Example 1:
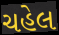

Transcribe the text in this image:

ચહેલ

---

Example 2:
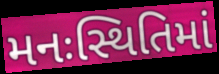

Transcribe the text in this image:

મનઃસ્થિતિમાં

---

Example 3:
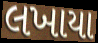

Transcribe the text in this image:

લખાયા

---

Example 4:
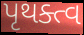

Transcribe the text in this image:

પૃથક્ત્વ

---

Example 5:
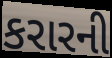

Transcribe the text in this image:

કરારની